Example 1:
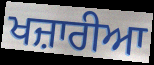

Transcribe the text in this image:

ਖਜ਼ਾਰੀਆ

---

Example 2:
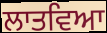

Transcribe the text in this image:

ਲਾਤਵਿਆ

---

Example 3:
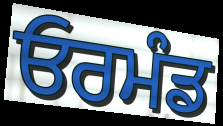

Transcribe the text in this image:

ਓਰਮੰਡ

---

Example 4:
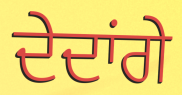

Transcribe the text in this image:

ਦੇਦਾਂਗੇ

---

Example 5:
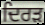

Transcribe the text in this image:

ਦਿਰੜ